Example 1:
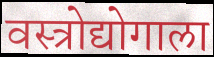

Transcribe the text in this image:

वस्त्रोद्योगाला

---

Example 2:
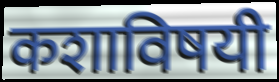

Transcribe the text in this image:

कशाविषयी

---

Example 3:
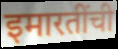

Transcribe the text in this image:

इमारतींची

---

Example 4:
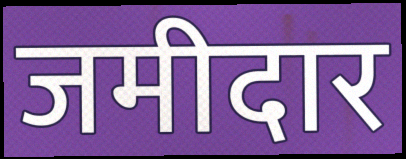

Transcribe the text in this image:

जमीदार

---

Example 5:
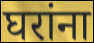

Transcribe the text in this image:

घरांना